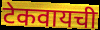
टेकवायची